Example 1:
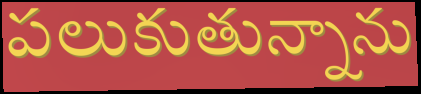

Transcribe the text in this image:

పలుకుతున్నాను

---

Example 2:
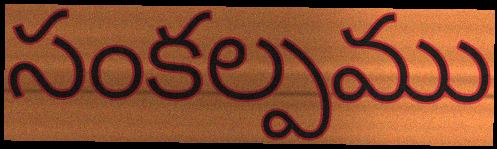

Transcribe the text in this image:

సంకల్పము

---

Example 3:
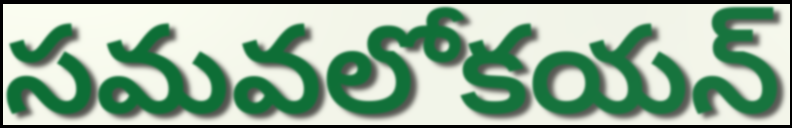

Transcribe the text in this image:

సమవలోకయన్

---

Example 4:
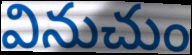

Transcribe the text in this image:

వినుచుం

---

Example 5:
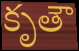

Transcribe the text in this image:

కృతౌ